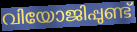
വിയോജിപ്പുണ്ട്